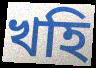
খহি